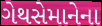
ગેથસેમાનેના